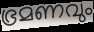
ഭ്രമണവും